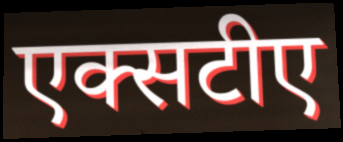
एक्सटीए